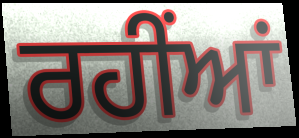
ਰਹੀਂਆਂ